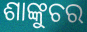
ଶାଙ୍କୁଚର